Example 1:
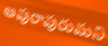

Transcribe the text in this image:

ఆవురావురుమని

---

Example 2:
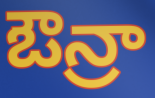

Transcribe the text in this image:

ఔన్రా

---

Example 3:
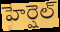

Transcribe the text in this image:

హెర్షెల్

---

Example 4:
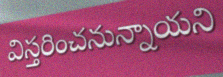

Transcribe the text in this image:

విస్తరించనున్నాయని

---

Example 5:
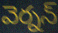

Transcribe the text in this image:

వెర్నన్